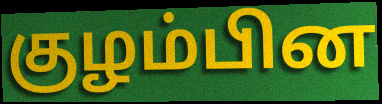
குழம்பின